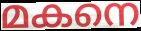
മകനെ